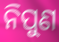
ନିପୁଣ